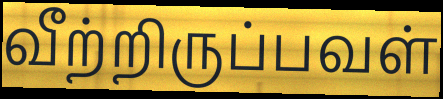
வீற்றிருப்பவள்